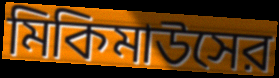
মিকিমাউসের